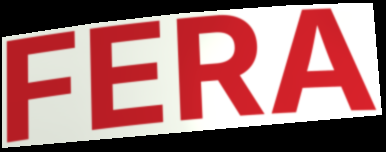
FERA